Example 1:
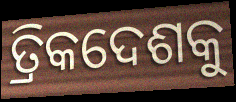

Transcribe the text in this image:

ତ୍ରିକଦେଶକୁ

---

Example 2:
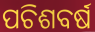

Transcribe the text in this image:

ପଚିଶବର୍ଷ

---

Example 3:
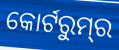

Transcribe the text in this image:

କୋର୍ଟରୁମ୍‌ର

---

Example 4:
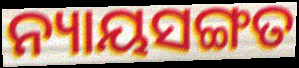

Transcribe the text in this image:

ନ୍ୟାୟସଙ୍ଗତ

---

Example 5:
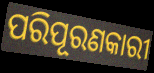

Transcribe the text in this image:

ପରିପୂରଣକାରୀ